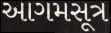
આગમસૂત્ર